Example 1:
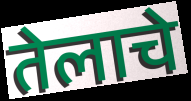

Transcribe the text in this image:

तेलाचे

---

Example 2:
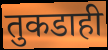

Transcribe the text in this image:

तुकडाही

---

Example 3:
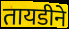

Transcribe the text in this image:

तायडीने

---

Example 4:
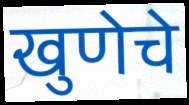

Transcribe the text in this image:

खुणेचे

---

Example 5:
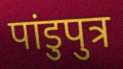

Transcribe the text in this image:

पांडुपुत्र